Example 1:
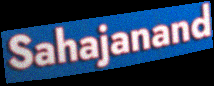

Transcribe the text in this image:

Sahajanand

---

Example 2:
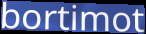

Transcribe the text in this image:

bortimot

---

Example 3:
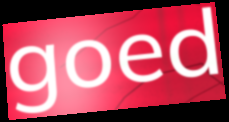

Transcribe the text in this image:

goed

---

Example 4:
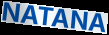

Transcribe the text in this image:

NATANA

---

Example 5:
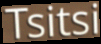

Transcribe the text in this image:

Tsitsi